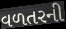
વળતરની